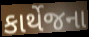
કાર્થેજના